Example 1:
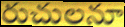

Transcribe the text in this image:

రుచులనూ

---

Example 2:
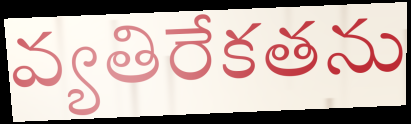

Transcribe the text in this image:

వ్యతిరేకతను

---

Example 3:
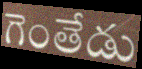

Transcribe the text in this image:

గెంతేడు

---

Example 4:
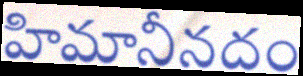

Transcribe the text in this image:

హిమానీనదం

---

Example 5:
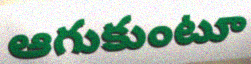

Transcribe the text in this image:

ఆగుకుంటూ